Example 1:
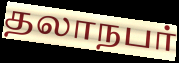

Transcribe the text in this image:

தலாநபர்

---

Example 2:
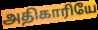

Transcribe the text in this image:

அதிகாரியே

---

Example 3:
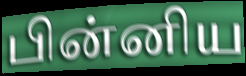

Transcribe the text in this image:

பின்னிய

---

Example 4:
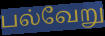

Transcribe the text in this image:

பல்வேறு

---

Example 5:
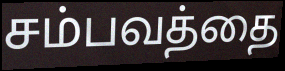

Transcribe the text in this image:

சம்பவத்தை